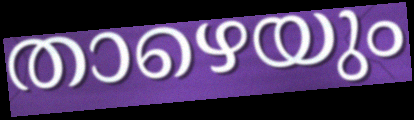
താഴെയും